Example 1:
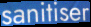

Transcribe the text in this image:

sanitiser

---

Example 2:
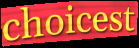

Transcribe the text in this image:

choicest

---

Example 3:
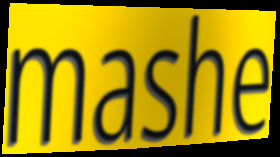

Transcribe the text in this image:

mashe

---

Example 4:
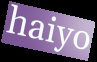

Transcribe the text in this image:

haiyo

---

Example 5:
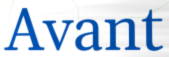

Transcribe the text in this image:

Avant